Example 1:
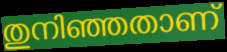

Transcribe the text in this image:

തുനിഞ്ഞതാണ്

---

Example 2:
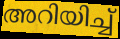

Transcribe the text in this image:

അറിയിച്ച്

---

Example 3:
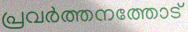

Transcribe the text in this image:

പ്രവർത്തനത്തോട്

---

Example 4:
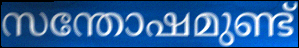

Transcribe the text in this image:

സന്തോഷമുണ്ട്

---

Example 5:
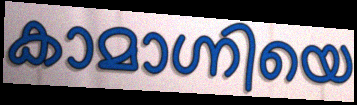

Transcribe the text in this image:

കാമാഗ്നിയെ